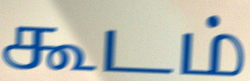
கூடம்